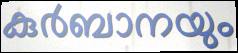
കുർബാനയും